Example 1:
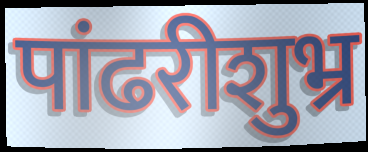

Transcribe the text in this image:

पांढरीशुभ्र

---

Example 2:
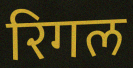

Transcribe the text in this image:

रिगल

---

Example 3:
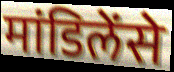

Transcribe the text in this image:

मांडिलेंसे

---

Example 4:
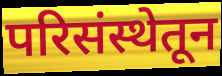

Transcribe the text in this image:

परिसंस्थेतून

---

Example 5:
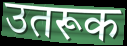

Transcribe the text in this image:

उतरूक